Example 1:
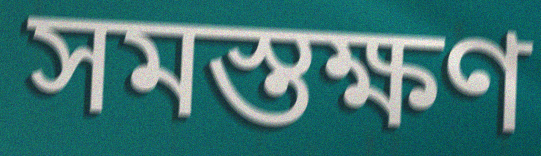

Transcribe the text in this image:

সমস্তক্ষণ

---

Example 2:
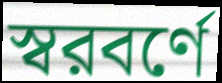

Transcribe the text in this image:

স্বরবর্ণে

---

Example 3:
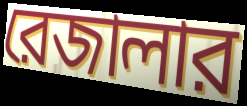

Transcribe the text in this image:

রেজালার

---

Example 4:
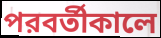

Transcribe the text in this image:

পরবর্তীকালে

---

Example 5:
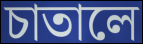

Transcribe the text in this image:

চাতালে